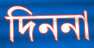
দিননা